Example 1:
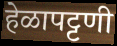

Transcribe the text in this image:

हेळापट्टणी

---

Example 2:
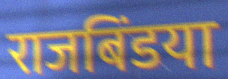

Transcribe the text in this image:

राजबिंडया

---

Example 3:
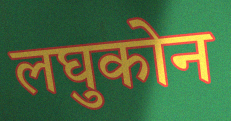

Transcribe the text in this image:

लघुकोन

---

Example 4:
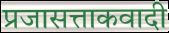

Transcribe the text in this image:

प्रजासत्ताकवादी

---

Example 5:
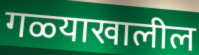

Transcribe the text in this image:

गळ्याखालील